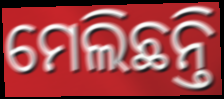
ମେଲିଛନ୍ତି